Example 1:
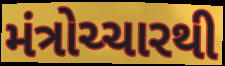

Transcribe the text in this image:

મંત્રોચ્ચારથી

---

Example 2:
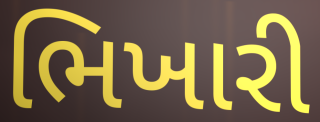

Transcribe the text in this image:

ભિખારી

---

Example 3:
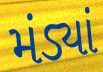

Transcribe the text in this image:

મંડ્યાં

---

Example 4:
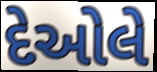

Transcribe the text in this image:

દેઓલે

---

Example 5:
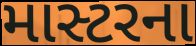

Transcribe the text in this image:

માસ્ટરના